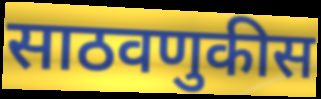
साठवणुकीस